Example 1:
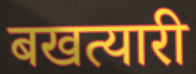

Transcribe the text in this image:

बखत्यारी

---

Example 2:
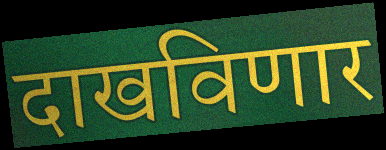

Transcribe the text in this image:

दाखविणार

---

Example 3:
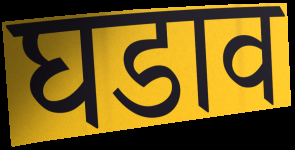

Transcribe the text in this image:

घडाव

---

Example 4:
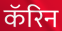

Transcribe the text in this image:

कॅरिन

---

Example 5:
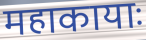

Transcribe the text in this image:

महाकायाः